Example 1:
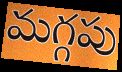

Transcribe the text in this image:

మగ్గపు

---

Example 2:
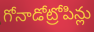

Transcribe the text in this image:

గోనాడోట్రోపిన్లు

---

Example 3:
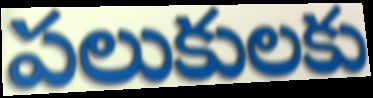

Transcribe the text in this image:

పలుకులకు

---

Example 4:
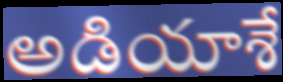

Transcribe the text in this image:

అడియాశే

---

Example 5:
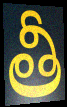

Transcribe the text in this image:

తీ